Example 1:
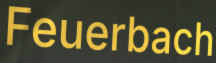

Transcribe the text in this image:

Feuerbach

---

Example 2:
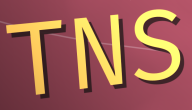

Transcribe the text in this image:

TNS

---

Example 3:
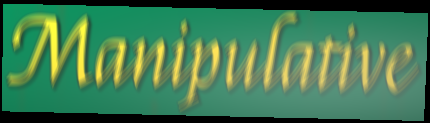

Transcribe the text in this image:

Manipulative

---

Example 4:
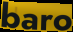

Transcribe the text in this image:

baro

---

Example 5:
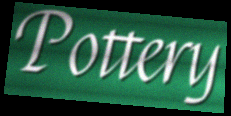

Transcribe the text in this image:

Pottery